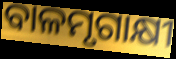
ବାଳମୃଗାକ୍ଷୀ